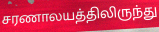
சரணாலயத்திலிருந்து